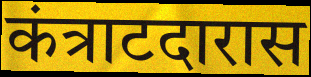
कंत्राटदारास